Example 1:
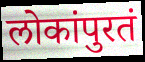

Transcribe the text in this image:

लोकांपुरतं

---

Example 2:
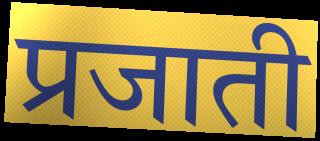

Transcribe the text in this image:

प्रजाती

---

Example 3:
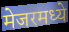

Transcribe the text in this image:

मेजरमध्ये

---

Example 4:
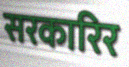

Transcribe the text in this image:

सरकारिर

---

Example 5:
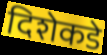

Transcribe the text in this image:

दिशेकडे